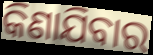
କିଣାଯିବାର